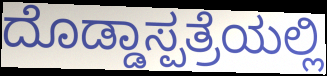
ದೊಡ್ಡಾಸ್ಪತ್ರೆಯಲ್ಲಿ